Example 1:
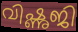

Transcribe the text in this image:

വിഷ്ണുജി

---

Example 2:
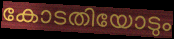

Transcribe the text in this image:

കോടതിയോടും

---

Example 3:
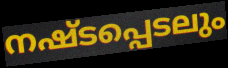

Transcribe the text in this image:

നഷ്ടപ്പെടലും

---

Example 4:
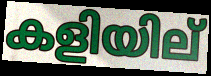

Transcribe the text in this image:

കളിയില്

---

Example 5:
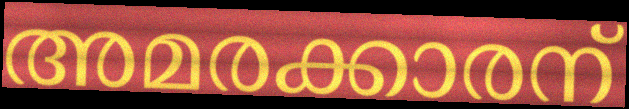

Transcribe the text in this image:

അമരക്കാരന്